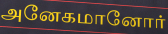
அனேகமானோர்